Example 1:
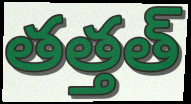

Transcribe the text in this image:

తత్తత్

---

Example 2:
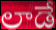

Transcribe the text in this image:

లాడే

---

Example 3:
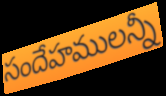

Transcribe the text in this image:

సందేహములన్నీ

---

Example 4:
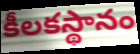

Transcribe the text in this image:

కీలకస్థానం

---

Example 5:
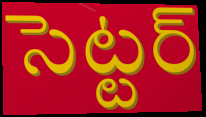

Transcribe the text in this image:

సెట్టర్